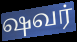
ஷவர்